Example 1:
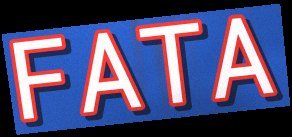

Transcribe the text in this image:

FATA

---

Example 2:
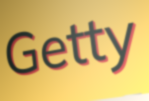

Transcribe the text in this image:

Getty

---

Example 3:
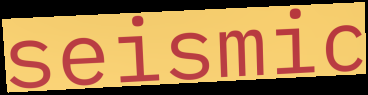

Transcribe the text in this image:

seismic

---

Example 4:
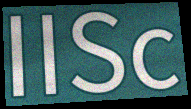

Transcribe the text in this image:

IISc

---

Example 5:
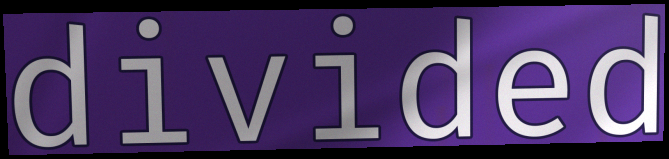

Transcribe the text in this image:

divided